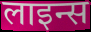
लाइन्स